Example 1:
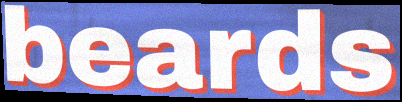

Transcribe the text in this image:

beards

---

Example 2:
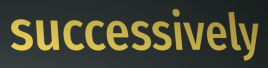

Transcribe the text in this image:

successively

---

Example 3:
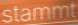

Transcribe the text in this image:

stammt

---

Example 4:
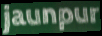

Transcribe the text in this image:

jaunpur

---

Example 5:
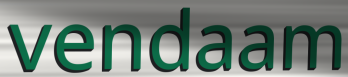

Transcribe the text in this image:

vendaam